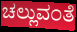
ಚಲ್ಲುವಂತೆ